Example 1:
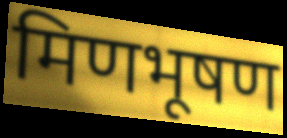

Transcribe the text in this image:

मिणभूषण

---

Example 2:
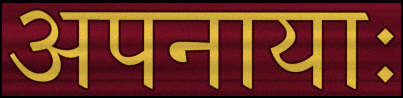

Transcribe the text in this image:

अपनायाः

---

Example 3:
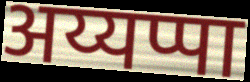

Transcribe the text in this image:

अय्यप्पा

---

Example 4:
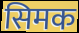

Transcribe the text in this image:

सिमक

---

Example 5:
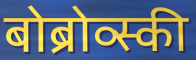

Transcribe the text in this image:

बोब्रोव्स्की